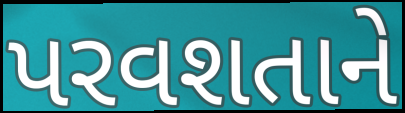
પરવશતાને